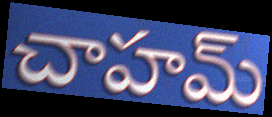
చాహమ్